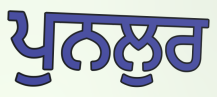
ਪੁਨਲੁਰ